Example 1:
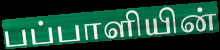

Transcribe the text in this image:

பப்பாளியின்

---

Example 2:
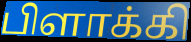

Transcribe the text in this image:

பிளாக்கி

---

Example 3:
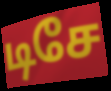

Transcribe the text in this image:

டிசே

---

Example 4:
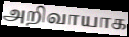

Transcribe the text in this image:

அறிவாயாக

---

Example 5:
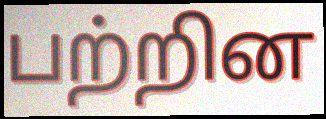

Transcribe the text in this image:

பற்றின